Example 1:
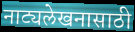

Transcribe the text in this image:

नाट्यलेखनासाठी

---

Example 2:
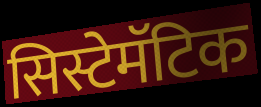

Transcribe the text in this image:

सिस्टेमॅटिक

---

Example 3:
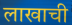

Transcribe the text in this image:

लाखाची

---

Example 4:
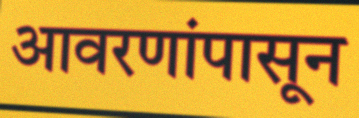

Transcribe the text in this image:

आवरणांपासून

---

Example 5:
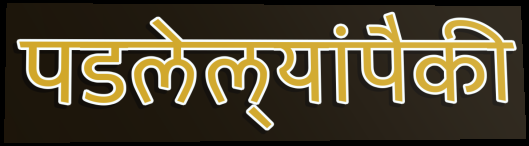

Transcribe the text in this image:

पडलेल्यांपैकी